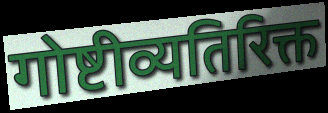
गोष्टीव्यतिरिक्त